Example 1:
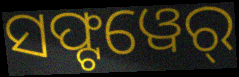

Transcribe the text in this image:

ସଫ୍ଟୱେର୍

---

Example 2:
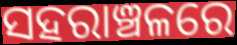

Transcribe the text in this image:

ସହରାଞ୍ଚଳରେ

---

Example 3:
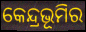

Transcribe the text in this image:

କେନ୍ଦ୍ରଭୂମିର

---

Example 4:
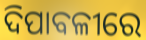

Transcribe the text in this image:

ଦିପାବଳୀରେ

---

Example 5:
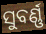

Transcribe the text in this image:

ସୁବର୍ଣ୍ଣ